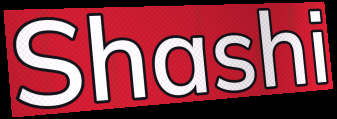
Shashi